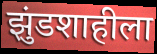
झुंडशाहीला